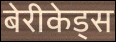
बेरीकेड्स